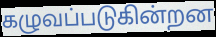
கழுவப்படுகின்றன